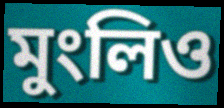
মুংলিও